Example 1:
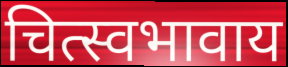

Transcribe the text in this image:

चित्स्वभावाय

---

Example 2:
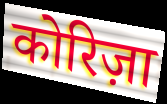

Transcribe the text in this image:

कोरिज़ा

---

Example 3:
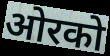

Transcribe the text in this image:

ओरको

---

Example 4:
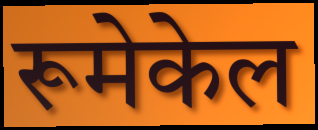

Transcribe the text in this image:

रूमेकेल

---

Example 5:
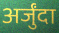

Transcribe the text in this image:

अर्जुंदा